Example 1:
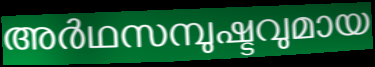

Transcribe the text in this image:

അർഥസമ്പുഷ്ടവുമായ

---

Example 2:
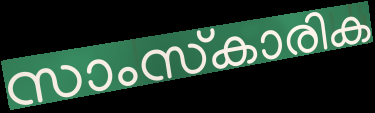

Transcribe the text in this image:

സാംസ്‌കാരിക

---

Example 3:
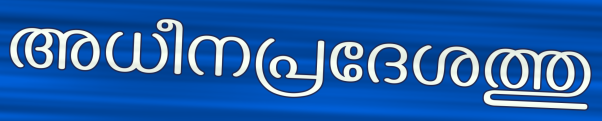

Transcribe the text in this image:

അധീനപ്രദേശത്തു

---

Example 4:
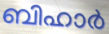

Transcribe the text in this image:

ബിഹാർ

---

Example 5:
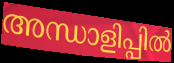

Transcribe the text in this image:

അന്ധാളിപ്പിൽ